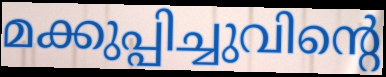
മക്കുപ്പിച്ചുവിന്റെ